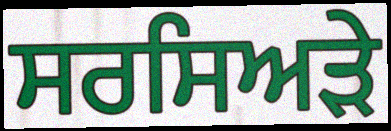
ਸਰਸਿਅੜੇ